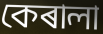
কেৰালা